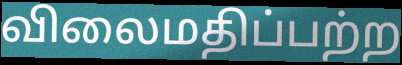
விலைமதிப்பற்ற